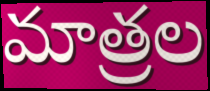
మాత్రల